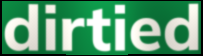
dirtied